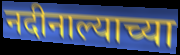
नदीनाल्याच्या